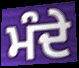
ਮੰਦੇ